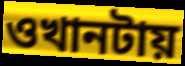
ওখানটায়